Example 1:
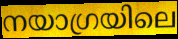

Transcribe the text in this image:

നയാഗ്രയിലെ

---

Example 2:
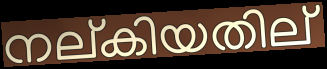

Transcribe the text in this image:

നല്കിയതില്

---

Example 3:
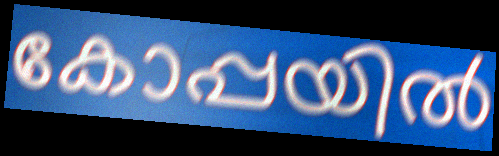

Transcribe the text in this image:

കോപ്പയിൽ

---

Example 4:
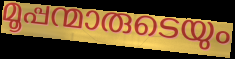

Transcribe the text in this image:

മൂപ്പന്മാരുടെയും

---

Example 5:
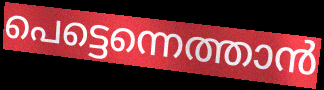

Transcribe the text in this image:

പെട്ടെന്നെത്താൻ